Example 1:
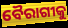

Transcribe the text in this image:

ବୈରାଗୀକୁ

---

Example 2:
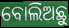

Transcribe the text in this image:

ବୋଲିଅଛୁ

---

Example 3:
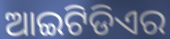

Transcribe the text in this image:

ଆଇଟିଡିଏର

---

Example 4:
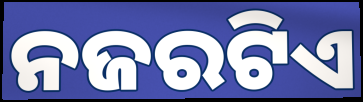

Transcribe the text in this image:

ନଜରଟିଏ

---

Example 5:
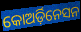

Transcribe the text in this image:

କୋଅର୍ଡ଼ିନେସନ